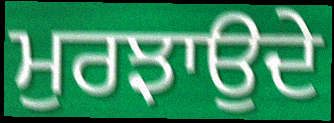
ਮੁਰਝਾਉਦੇ